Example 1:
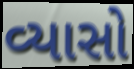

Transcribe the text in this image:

વ્યાસો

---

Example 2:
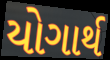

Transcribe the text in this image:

યોગાર્થ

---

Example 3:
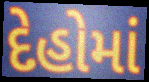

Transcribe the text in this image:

દેહોમાં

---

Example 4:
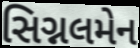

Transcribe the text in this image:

સિગ્નલમેન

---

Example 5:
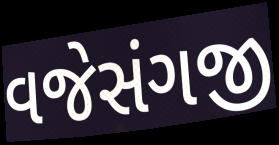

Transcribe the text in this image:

વજેસંગજી